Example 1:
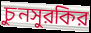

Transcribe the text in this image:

চুনসুরকির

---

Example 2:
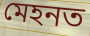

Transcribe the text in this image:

মেহনত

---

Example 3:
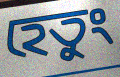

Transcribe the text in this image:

হেতুং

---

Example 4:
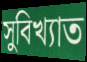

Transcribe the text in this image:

সুবিখ্যাত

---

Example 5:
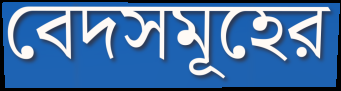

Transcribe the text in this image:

বেদসমূহের